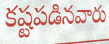
కష్టపడినవారు